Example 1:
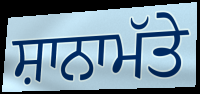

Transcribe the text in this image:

ਸ਼ਾਨਾਮੱਤੇ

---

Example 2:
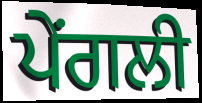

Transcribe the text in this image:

ਪੇਂਗਲੀ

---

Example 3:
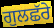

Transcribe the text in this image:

ਗੁਲਛੱਰੇ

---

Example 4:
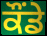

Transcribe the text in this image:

ਕੌਂਡੇ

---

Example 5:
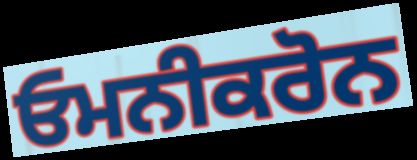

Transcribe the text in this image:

ਓਮਨੀਕਰੋਨ